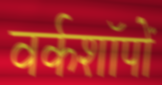
वर्कशॉपों